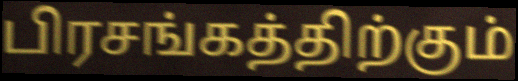
பிரசங்கத்திற்கும்